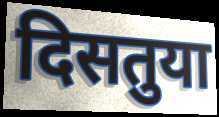
दिसतुया